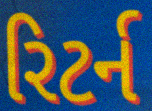
રિટર્ન